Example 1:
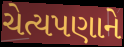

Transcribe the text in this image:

ચેત્યપણાને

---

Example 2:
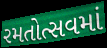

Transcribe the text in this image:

રમતોત્સવમાં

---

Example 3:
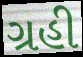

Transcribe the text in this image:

ગ્રહી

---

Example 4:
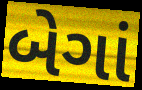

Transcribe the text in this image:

બેગાં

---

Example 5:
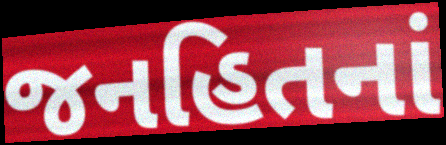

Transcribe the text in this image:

જનહિતનાં